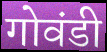
गोवंडी